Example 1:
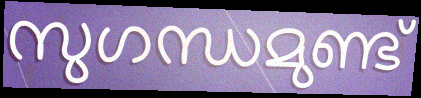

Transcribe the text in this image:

സുഗന്ധമുണ്ട്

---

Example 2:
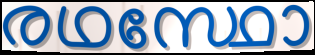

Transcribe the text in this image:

രഥസ്ഥോ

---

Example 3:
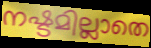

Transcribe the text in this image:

നഷ്ടമില്ലാതെ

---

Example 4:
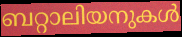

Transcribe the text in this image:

ബറ്റാലിയനുകൾ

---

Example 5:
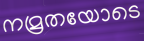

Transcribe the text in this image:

നമ്രതയോടെ